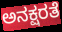
ಅನಕ್ಷರತೆ